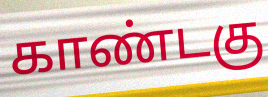
காண்டகு